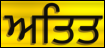
ਅਤਿਤ